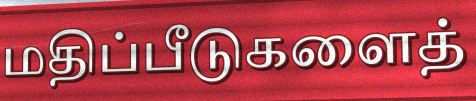
மதிப்பீடுகளைத்